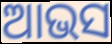
ଆଭସ